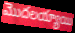
మొదలయ్యాయి